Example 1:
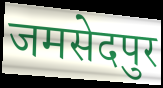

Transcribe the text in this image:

जमसेदपुर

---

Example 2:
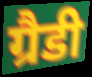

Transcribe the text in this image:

ग्रैडी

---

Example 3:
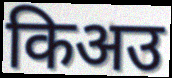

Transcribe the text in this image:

किअउ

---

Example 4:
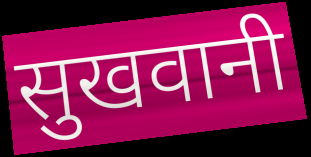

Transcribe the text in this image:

सुखवानी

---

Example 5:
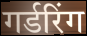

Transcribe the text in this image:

गर्डरिंग